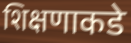
शिक्षणाकडे